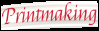
Printmaking